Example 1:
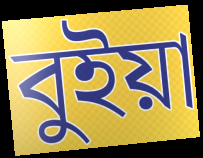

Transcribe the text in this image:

বুইয়া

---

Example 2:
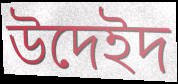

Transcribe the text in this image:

উদেইদ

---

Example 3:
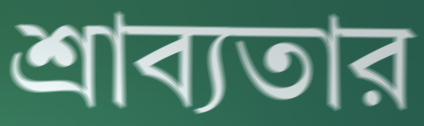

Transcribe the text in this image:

শ্রাব্যতার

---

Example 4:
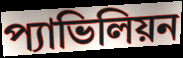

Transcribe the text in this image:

প্যাভিলিয়ন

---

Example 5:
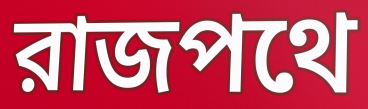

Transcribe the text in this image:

রাজপথে